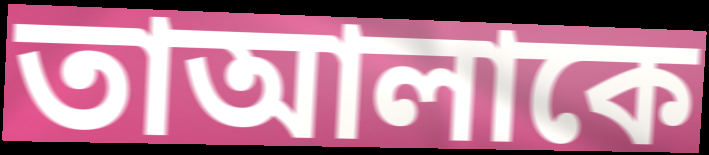
তাআলাকে